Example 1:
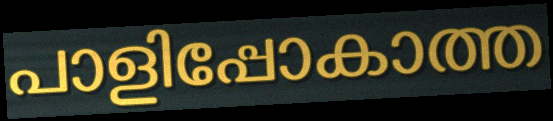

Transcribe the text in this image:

പാളിപ്പോകാത്ത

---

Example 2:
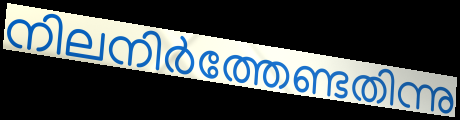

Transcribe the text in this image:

നിലനിർത്തേണ്ടതിന്നു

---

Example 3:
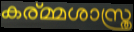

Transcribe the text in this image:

കര്മ്മശാസ്ത്ര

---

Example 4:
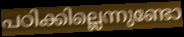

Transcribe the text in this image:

പഠിക്കില്ലെന്നുണ്ടോ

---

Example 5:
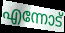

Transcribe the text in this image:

എന്നോട്